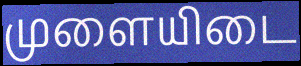
முளையிடை